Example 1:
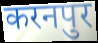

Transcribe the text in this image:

करनपुर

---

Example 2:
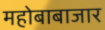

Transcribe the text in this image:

महोबाबाजार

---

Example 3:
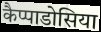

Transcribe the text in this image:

कैप्पाडोसिया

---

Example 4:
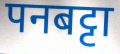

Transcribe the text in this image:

पनबट्टा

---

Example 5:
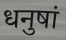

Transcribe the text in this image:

धनुषां